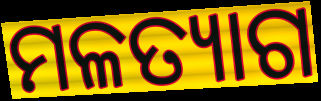
ମଳତ୍ୟାଗ